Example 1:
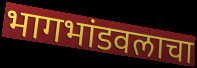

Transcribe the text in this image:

भागभांडवलाचा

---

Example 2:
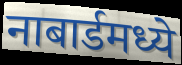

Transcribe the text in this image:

नाबार्डमध्ये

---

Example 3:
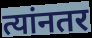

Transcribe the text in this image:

त्यांनतर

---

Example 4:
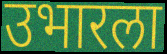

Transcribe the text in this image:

उभारला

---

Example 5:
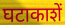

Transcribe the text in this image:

घटाकाशें